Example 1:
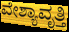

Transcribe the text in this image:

ವೇಶ್ಯಾವೃತ್ತಿ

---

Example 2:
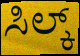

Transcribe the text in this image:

ಸಿಲ್ಕ್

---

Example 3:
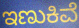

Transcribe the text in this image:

ಇಣುಕಿವೆ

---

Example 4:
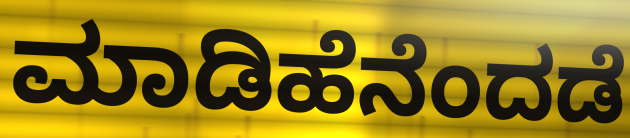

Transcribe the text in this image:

ಮಾಡಿಹೆನೆಂದಡೆ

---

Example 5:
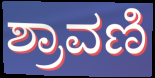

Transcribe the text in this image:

ಶ್ರಾವಣಿ